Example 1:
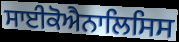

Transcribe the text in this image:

ਸਾਈਕੋਐਨਾਲਿਸਿਸ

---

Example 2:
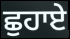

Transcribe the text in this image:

ਛੁਹਾਏ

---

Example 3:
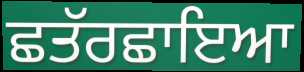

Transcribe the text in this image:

ਛਤੱਰਛਾਇਆ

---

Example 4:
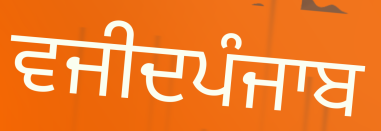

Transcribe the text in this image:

ਵਜੀਦਪੰਜਾਬ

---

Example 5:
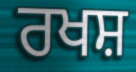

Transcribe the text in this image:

ਰਖਸ਼